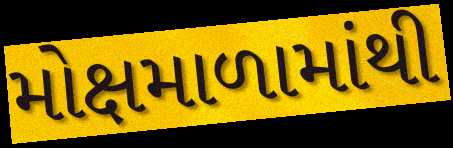
મોક્ષમાળામાંથી